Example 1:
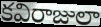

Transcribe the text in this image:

కవిరాజులా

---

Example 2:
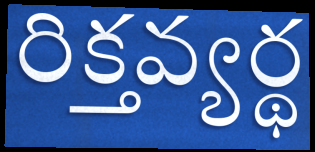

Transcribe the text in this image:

రిక్తవ్యర్థ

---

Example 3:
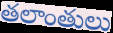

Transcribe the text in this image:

తలాంతులు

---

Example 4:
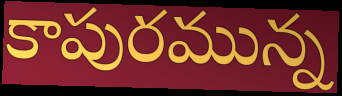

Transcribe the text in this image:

కాపురమున్న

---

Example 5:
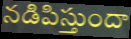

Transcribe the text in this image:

నడిపిస్తుందా